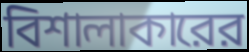
বিশালাকারের